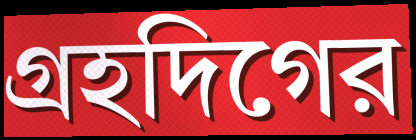
গ্রহদিগের